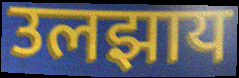
उलझाय